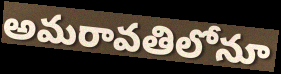
అమరావతిలోనూ